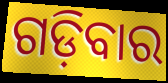
ଗଡ଼ିବାର